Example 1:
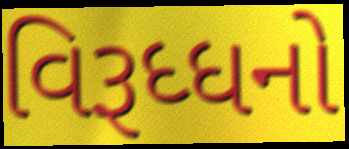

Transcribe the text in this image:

વિરૂધ્ધનો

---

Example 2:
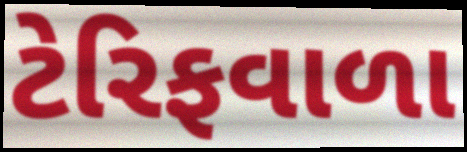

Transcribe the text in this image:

ટેરિફવાળા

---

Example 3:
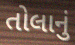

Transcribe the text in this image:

તોલાનું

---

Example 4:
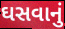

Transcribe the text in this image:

ઘસવાનું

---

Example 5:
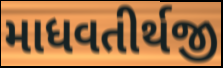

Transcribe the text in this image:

માધવતીર્થજી